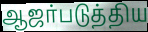
ஆஜர்படுத்திய